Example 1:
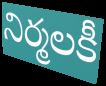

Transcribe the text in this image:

నిర్మలకీ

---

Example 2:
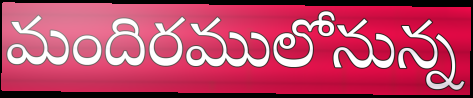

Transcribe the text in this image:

మందిరములోనున్న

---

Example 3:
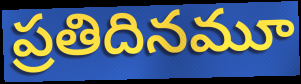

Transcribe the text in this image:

ప్రతిదినమూ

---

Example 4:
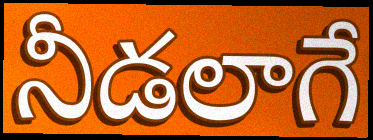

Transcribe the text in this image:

నీడలాగే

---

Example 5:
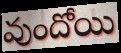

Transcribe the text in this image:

వుందోయి